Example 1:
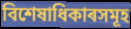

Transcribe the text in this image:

বিশেষাধিকাৰসমূহ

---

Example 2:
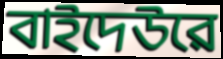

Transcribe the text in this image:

বাইদেউৱে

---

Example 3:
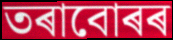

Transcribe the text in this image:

তৰাবোৰৰ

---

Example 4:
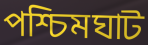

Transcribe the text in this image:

পশ্চিমঘাট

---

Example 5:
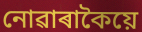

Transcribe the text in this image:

নোৱাৰাকৈয়ে